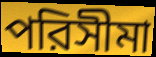
পরিসীমা